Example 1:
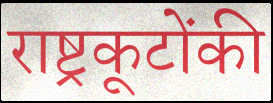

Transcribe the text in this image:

राष्ट्रकूटोंकी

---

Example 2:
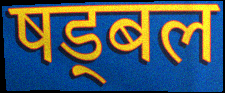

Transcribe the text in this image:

षड्बल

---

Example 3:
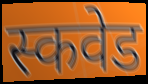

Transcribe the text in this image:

स्कवेड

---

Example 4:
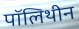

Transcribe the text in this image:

पॉलिथीन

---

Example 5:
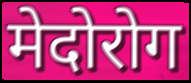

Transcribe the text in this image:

मेदोरोग